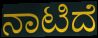
ನಾಟಿದೆ